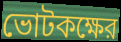
ভোটকক্ষের